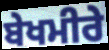
ਬੇਖਮੀਰੇ